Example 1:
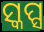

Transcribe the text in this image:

ସ୍କପ୍ସ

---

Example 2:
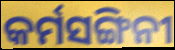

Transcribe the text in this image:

କର୍ମସଙ୍ଗିନୀ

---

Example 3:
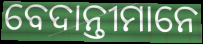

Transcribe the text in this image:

ବେଦାନ୍ତୀମାନେ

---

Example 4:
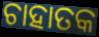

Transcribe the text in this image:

ଚାହାତକ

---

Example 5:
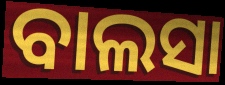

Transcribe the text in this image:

ବାଲସା